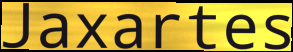
Jaxartes